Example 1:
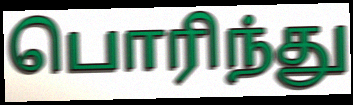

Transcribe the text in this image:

பொரிந்து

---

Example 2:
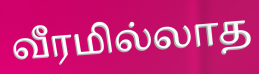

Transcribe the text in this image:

வீரமில்லாத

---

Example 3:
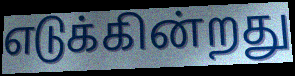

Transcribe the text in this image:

எடுக்கின்றது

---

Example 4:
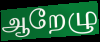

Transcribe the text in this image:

ஆறேழு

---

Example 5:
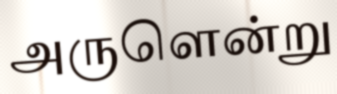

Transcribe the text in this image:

அருளென்று